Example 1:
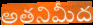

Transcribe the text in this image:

అతనిమీద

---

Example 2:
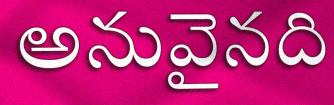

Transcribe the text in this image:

అనువైనది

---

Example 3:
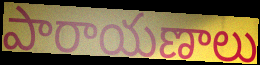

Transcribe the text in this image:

పారాయణాలు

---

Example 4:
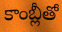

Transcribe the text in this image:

కాంబ్లీతో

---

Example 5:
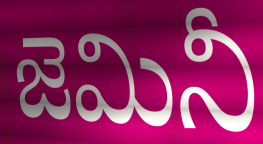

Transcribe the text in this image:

జెమినీ